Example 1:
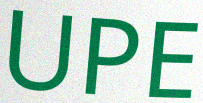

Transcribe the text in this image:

UPE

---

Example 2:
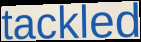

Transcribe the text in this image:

tackled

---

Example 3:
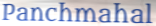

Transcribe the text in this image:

Panchmahal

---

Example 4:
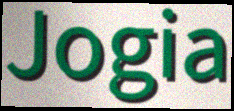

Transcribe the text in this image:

Jogia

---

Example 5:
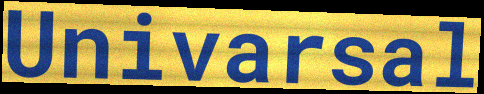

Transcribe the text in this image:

Univarsal